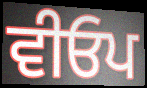
ਵੀਓਪ